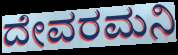
ದೇವರಮನಿ